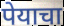
पेयाचा